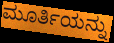
ಮೂರ್ತಿಯನ್ನು